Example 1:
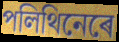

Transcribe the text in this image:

পলিথিনেৰে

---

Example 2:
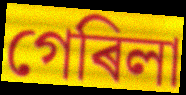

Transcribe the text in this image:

গেৰিলা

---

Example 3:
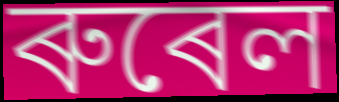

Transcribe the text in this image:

ৰুৰেল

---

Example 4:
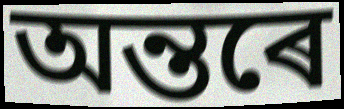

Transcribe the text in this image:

অন্তৰে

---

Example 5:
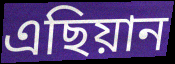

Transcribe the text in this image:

এছিয়ান